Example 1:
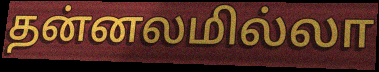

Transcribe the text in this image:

தன்னலமில்லா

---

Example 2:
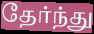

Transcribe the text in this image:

தேர்ந்து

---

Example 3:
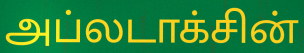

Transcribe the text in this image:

அப்லடாக்சின்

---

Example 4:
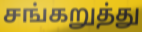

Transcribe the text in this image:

சங்கறுத்து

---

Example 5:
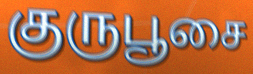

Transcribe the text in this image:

குருபூசை